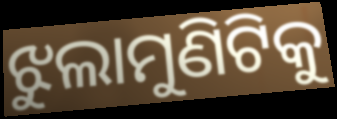
ଝୁଲାମୁଣିଟିକୁ